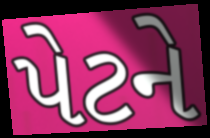
પેટને